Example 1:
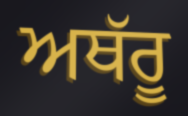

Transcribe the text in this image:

ਅਥੱਰੂ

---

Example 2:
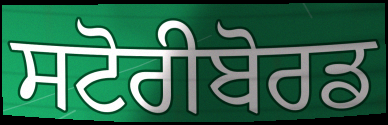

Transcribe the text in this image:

ਸਟੋਰੀਬੋਰਡ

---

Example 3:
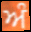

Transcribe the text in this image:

ਅੰ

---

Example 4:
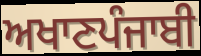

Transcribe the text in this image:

ਅਖਾਣਪੰਜਾਬੀ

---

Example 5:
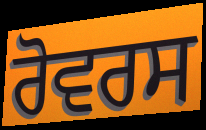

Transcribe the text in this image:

ਰੋਵਰਸ